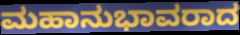
ಮಹಾನುಭಾವರಾದ